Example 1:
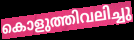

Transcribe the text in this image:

കൊളുത്തിവലിച്ചു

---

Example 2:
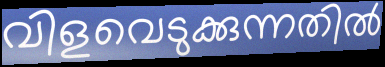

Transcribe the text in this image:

വിളവെടുക്കുന്നതിൽ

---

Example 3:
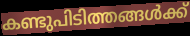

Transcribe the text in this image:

കണ്ടുപിടിത്തങ്ങൾക്ക്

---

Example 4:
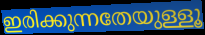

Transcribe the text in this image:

ഇരിക്കുന്നതേയുള്ളൂ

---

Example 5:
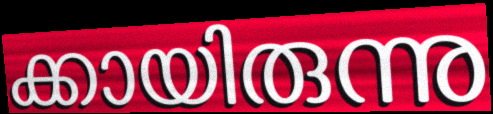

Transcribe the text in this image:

ക്കായിരുന്നു